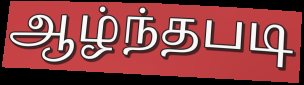
ஆழ்ந்தபடி